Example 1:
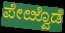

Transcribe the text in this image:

ಪೇೞ್ವೊಡೆ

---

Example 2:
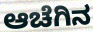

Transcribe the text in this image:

ಆಚೆಗಿನ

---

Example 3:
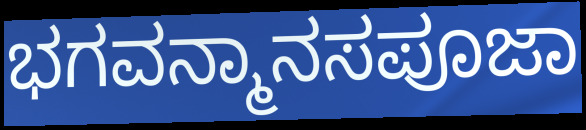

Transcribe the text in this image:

ಭಗವನ್ಮಾನಸಪೂಜಾ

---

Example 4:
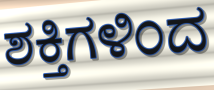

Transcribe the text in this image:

ಶಕ್ತಿಗಳಿಂದ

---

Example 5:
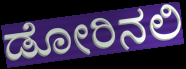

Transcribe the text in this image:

ಡೋರಿನಲಿ